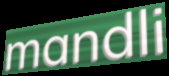
mandli